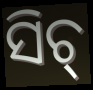
ସିଚ୍